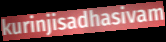
kurinjisadhasivam